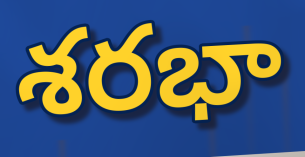
శరభా